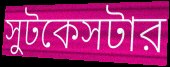
সুটকেসটার